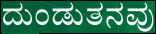
ದುಂಡುತನವು